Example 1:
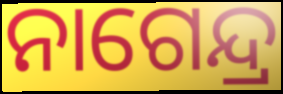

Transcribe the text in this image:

ନାଗେନ୍ଦ୍ର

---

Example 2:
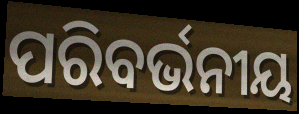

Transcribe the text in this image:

ପରିବର୍ଭନୀୟ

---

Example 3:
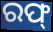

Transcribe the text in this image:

ରଫ୍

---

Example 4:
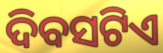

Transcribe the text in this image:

ଦିବସଟିଏ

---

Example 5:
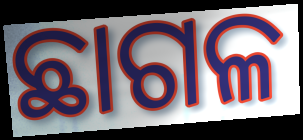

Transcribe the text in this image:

ଛାଗଳ